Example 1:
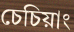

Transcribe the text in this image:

চেচিয়াং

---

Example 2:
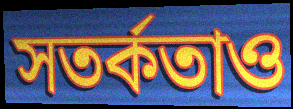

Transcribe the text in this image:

সতর্কতাও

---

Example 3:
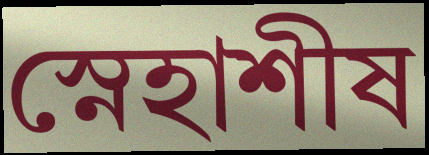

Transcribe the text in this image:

স্নেহাশীষ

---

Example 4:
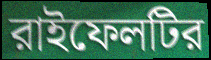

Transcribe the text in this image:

রাইফেলটির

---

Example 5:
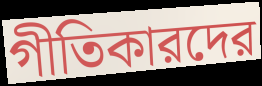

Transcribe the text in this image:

গীতিকারদের